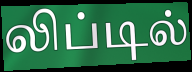
லிப்டில்